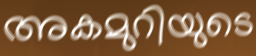
അകമുറിയുടെ